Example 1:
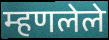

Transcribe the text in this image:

म्हणलेले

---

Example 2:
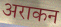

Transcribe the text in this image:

अराकन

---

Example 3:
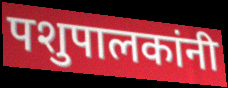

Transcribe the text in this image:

पशुपालकांनी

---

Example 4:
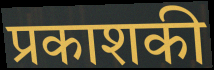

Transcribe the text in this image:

प्रकाशकी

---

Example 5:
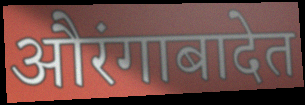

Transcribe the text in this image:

औरंगाबादेत